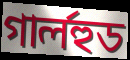
গার্লহুড